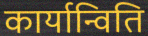
कार्यान्विति